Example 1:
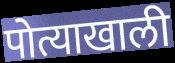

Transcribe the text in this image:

पोत्याखाली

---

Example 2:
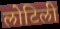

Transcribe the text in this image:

लोटिली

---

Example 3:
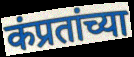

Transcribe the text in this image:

कंप्रतांच्या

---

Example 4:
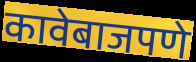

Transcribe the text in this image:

कावेबाजपणे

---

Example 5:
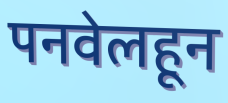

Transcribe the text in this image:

पनवेलहून